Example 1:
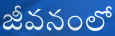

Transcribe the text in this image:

జీవనంలో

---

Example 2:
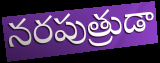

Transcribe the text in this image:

నరపుత్రుడా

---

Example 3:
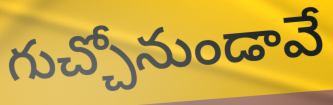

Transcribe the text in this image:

గుచ్చోనుండావే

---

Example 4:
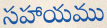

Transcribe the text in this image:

సహాయము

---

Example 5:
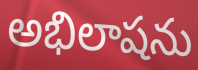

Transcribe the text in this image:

అభిలాషను